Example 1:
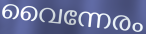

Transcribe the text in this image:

വൈന്നേരം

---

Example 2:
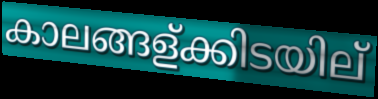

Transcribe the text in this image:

കാലങ്ങള്ക്കിടയില്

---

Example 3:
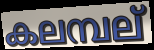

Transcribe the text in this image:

കലമ്പല്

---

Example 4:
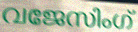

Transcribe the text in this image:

വജേസിംഗ്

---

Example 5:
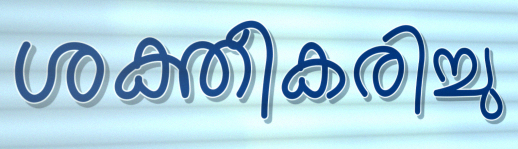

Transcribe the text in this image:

ശക്തീകരിച്ചു